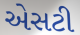
એસટી